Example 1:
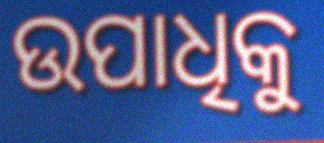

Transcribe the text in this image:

ଉପାଧିକୁ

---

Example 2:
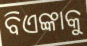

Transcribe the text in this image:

ବିଏଙ୍କାକୁ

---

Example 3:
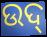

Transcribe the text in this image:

ଉଦ୍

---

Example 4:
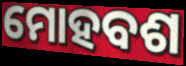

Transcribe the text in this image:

ମୋହବଶ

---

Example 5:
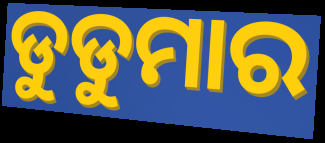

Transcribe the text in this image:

ଡୁଡୁମାର